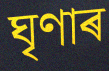
ঘৃণাৰ